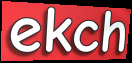
ekch